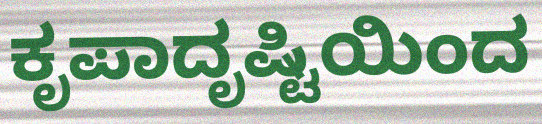
ಕೃಪಾದೃಷ್ಟಿಯಿಂದ